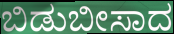
ಬಿಡುಬೀಸಾದ